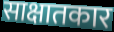
साक्षातकार